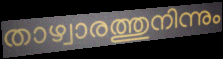
താഴ്വാരത്തുനിന്നും